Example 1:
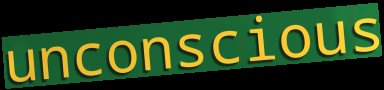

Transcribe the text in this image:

unconscious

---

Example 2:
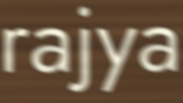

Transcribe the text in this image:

rajya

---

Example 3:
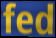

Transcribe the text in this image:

fed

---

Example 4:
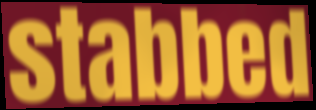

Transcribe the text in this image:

stabbed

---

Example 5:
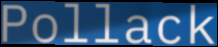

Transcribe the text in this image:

Pollack